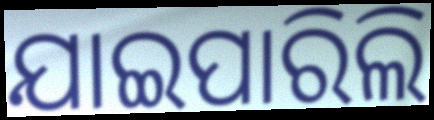
ଯାଇପାରିଲି